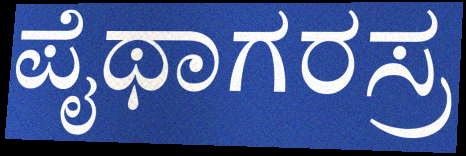
ಪೈಥಾಗರಸ್ರ